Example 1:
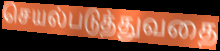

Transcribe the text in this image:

செயல்படுத்துவதை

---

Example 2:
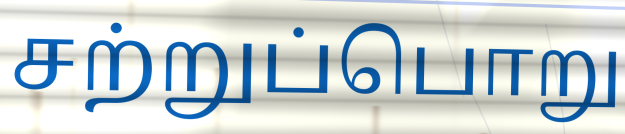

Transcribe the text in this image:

சற்றுப்பொறு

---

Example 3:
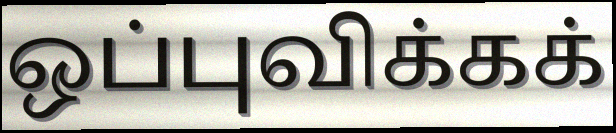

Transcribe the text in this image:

ஒப்புவிக்கக்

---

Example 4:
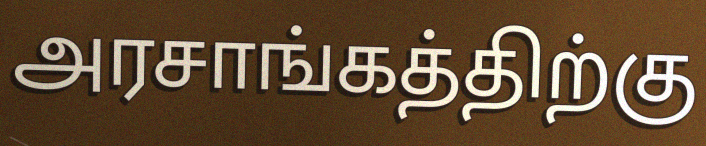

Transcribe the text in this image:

அரசாங்கத்திற்கு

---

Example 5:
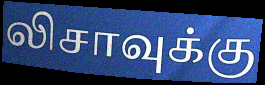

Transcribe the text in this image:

லிசாவுக்கு